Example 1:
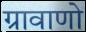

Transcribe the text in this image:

ग्रावाणो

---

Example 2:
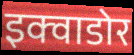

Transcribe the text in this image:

इक्‍वाडोर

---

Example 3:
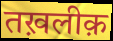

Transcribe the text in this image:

तख़लीक़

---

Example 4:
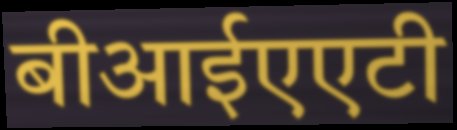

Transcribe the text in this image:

बीआईएएटी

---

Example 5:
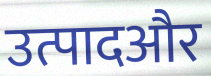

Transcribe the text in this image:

उत्पादऔर